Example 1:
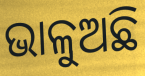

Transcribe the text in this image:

ଭାଳୁଅଛି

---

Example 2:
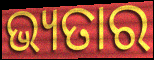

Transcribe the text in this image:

ଭ୍ୟତାର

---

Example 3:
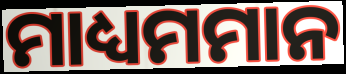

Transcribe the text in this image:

ମାଧ୍ୟମମାନ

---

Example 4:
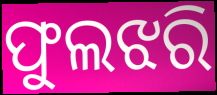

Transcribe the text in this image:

ଫୁଲଝରି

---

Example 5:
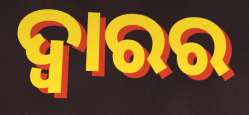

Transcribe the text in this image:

ଦ୍ୱାରର